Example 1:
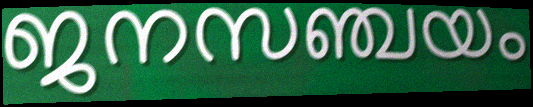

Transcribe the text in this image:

ജനസഞ്ചയം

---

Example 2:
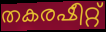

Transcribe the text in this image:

തകരഷീറ്റ്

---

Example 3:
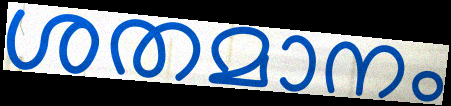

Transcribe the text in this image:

ശതമാനം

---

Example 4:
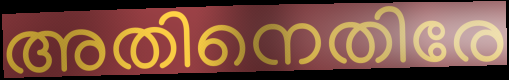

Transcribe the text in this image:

അതിനെതിരേ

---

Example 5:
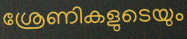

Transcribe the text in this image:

ശ്രേണികളുടെയും